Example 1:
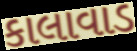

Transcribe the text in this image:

કાલાવાડ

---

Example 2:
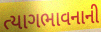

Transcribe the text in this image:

ત્યાગભાવનાની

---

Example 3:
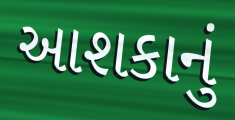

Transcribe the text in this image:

આશકાનું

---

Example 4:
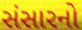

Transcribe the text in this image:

સંસારનો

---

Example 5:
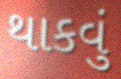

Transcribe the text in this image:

થાકવું